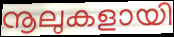
നൂലുകളായി